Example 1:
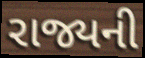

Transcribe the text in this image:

રાજ્યની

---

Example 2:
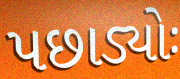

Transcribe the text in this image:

પછાડ્યોઃ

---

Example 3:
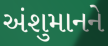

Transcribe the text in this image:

અંશુમાનને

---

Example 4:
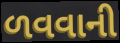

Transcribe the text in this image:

ળવવાની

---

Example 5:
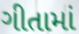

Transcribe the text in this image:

ગીતામાં